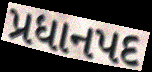
પ્રધાનપદ